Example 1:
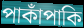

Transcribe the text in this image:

পাকাঁপাকি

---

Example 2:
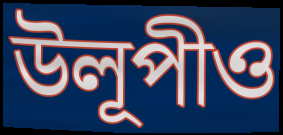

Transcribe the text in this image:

উলূপীও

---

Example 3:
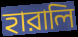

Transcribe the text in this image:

হারালি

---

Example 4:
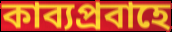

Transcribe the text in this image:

কাব্যপ্রবাহে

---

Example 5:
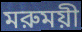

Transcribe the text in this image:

মরুময়ী